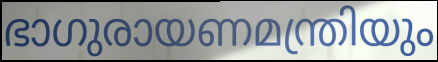
ഭാഗുരായണമന്ത്രിയും